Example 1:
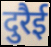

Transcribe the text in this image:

दुरैई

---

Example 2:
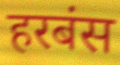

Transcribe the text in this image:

हरबंस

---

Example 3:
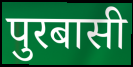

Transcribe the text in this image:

पुरबासी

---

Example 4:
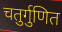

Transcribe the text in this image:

चतुर्गुणित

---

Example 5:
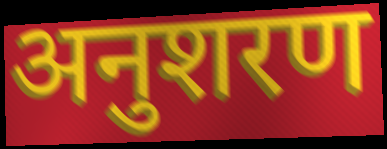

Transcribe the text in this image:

अनुशरण